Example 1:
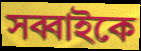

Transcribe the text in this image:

সব্বাইকে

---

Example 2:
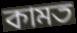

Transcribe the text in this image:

কামত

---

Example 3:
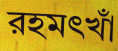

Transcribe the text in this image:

রহমৎখাঁ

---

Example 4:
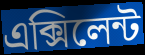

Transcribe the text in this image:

এক্সিলেন্ট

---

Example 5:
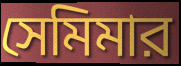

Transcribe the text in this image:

সেমিমার